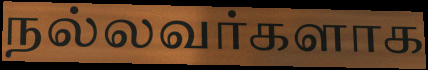
நல்லவர்களாக